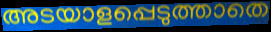
അടയാളപ്പെടുത്താതെ